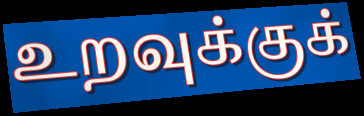
உறவுக்குக்